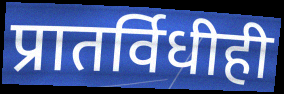
प्रातर्विधीही